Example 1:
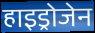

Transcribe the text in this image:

हाइड्रोजेन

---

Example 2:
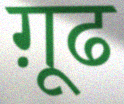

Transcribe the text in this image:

ग़ूढ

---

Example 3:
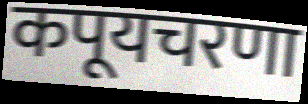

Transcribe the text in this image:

कपूयचरणा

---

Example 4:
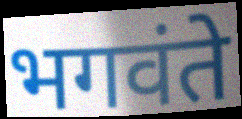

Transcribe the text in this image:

भगवंते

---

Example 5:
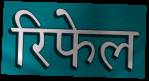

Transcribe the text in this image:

रिफेल